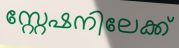
സ്റ്റേഷനിലേക്ക്